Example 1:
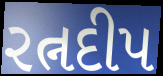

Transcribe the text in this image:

રત્નદીપ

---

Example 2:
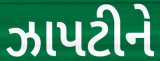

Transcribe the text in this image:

ઝાપટીને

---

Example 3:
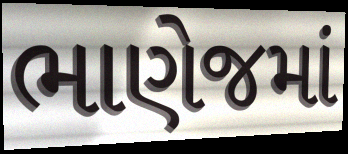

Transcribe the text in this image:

ભાણેજમાં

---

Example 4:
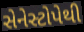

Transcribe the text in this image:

સેનેસ્ટોપેથી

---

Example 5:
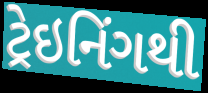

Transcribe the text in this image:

ટ્રેઇનિંગથી